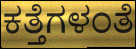
ಕತ್ತೆಗಳಂತೆ